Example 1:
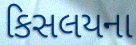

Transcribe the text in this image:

કિસલયના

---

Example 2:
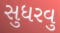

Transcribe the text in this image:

સુધરવુ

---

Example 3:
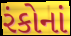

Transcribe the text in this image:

રંકોનાં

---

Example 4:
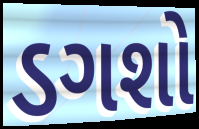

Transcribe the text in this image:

ડગશો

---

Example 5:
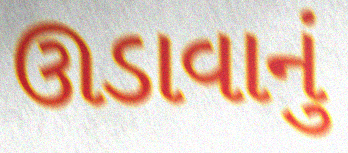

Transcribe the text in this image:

ઊડાવાનું